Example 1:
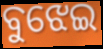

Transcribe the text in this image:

ବୁଝେଇ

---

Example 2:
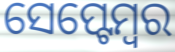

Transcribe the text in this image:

ସେପ୍ଟେମ୍ୱର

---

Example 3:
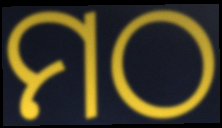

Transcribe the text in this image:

ମଠ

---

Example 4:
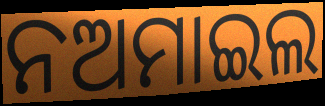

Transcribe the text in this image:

ନଅମାଇଲ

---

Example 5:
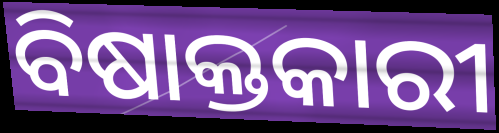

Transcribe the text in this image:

ବିଷାକ୍ତକାରୀ